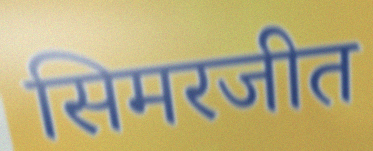
सिमरजीत